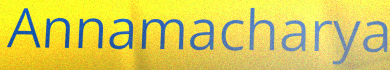
Annamacharya